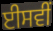
ਈਸਵੀਂ